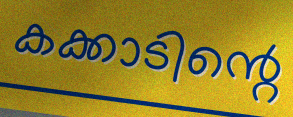
കക്കാടിന്റെ